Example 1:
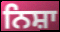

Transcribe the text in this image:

ਨਿਸ਼ਾ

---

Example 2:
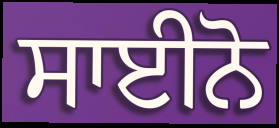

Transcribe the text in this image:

ਸਾਈਨੋ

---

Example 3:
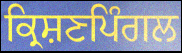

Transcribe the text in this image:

ਕ੍ਰਿਸ਼ਣਪਿੰਗਲ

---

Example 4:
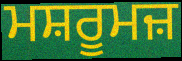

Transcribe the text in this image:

ਮਸ਼ਰੂਮਜ਼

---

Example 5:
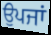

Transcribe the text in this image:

ਉਪਜਾਂ